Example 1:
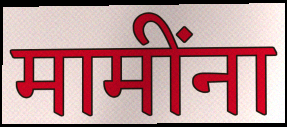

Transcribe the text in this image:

मामींना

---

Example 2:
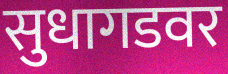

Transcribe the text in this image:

सुधागडवर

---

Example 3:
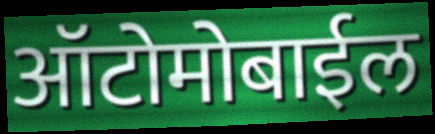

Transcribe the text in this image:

ऑटोमोबाईल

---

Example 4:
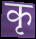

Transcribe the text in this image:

कृ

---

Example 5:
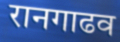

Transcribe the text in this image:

रानगाढव